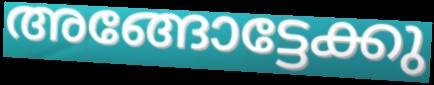
അങ്ങോട്ടേക്കു